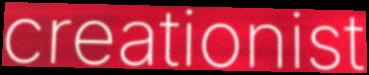
creationist